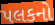
પલકનો